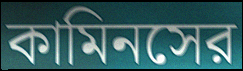
কামিনসের